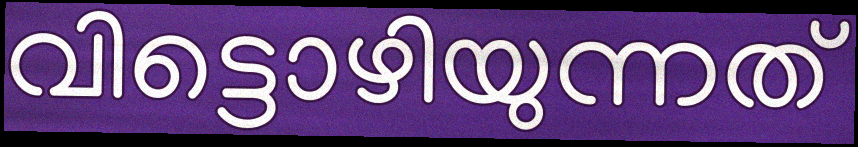
വിട്ടൊഴിയുന്നത്